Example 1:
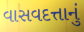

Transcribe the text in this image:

વાસવદત્તાનું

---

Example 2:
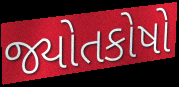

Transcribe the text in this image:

જ્યોતકોષો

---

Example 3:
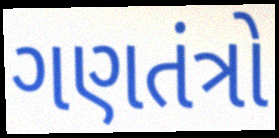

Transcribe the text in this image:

ગણતંત્રો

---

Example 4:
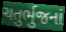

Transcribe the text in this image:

ચતુર્ભુજનાં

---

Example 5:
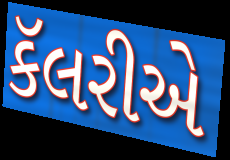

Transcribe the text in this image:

કૅલરીએ